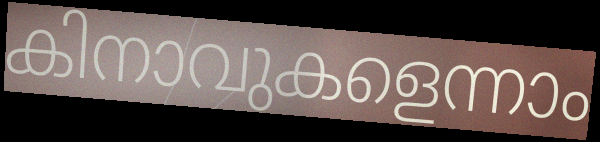
കിനാവുകളെന്നാം